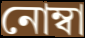
নোম্বা